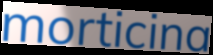
morticina